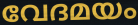
വേദമയം